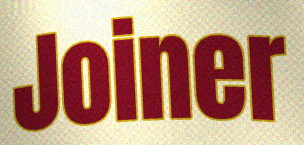
Joiner